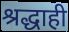
श्रद्धाही